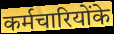
कर्मचारियोंके